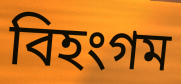
বিহংগম